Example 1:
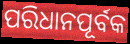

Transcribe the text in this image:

ପରିଧାନପୂର୍ବକ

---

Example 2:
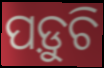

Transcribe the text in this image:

ପଡ଼ୁଚି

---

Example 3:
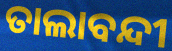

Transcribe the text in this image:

ତାଲାବନ୍ଦୀ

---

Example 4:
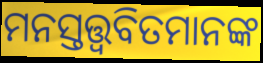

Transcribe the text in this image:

ମନସ୍ତତ୍ତ୍ୱବିତମାନଙ୍କ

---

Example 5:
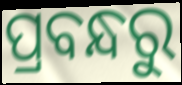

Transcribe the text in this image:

ପ୍ରବନ୍ଧରୁ